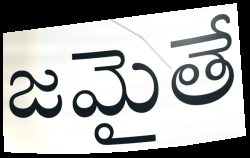
జమైతే